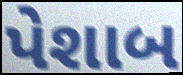
પેશાબ